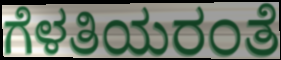
ಗೆಳತಿಯರಂತೆ